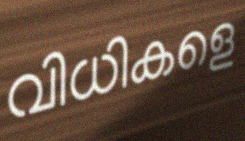
വിധികളെ